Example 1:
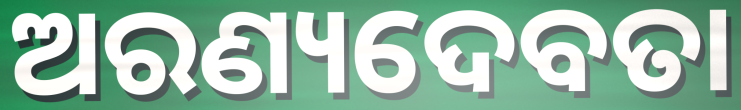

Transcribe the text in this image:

ଅରଣ୍ୟଦେବତା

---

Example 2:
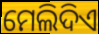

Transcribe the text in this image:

ମେଲିଦିଏ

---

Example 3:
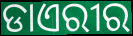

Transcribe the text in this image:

ଡାଏରୀର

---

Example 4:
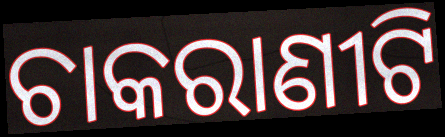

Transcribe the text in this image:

ଚାକରାଣୀଟି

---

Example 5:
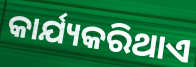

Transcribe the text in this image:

କାର୍ଯ୍ୟକରିଥାଏ